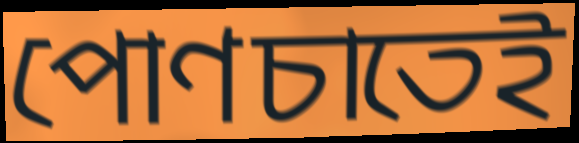
পোণচাতেই